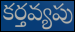
కర్తవ్యపు